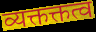
व्यक्तक्तत्व